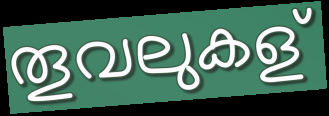
തൂവലുകള്